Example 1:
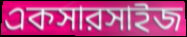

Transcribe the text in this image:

একসারসাইজ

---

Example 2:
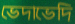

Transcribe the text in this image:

ভেদাভেদি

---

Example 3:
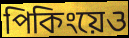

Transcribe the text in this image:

পিকিংয়েও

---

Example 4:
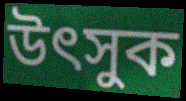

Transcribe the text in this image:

উৎসুক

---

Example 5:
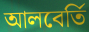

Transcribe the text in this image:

আলবের্তি